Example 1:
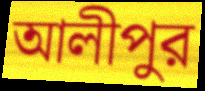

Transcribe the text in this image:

আলীপুর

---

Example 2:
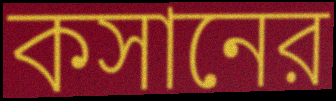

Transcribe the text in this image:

কসানের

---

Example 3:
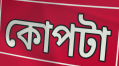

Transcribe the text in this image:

কোপটা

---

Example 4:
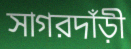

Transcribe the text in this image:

সাগরদাঁড়ী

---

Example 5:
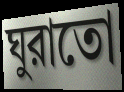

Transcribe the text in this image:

ঘুরাতো